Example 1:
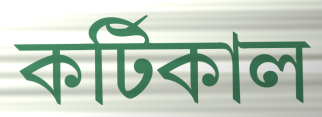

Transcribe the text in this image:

কর্টিকাল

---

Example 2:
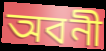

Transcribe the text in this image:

অবনী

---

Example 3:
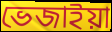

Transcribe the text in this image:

ভেজাইয়া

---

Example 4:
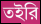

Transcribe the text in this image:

তইরি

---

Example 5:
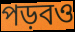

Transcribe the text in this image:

পড়বও